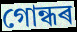
গোন্ধৰ